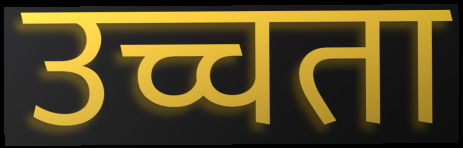
उच्चता